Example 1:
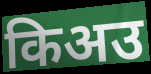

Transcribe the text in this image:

किअउ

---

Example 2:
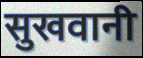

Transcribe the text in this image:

सुखवानी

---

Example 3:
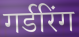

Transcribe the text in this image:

गर्डरिंग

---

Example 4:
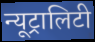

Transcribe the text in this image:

न्यूट्रालिटी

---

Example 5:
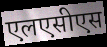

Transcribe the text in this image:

एलएसीएस